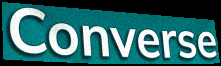
Converse